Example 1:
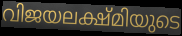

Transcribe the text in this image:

വിജയലക്ഷ്മിയുടെ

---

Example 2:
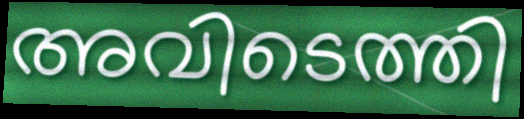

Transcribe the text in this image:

അവിടെത്തി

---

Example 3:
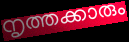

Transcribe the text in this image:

നൃത്തക്കാരും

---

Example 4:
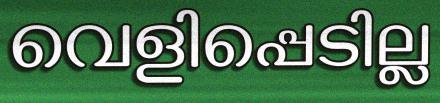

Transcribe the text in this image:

വെളിപ്പെടില്ല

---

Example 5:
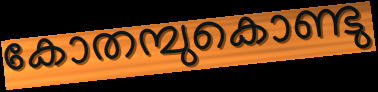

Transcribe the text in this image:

കോതമ്പുകൊണ്ടു